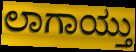
ಲಾಗಾಯ್ತು